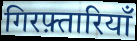
गिरफ़्तारियाँ